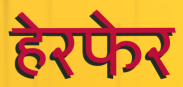
हेरफेर